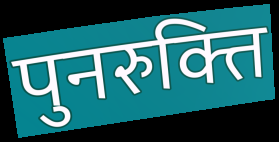
पुनरुक्ति